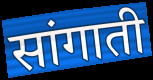
सांगाती